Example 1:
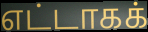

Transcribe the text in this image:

எட்டாகக்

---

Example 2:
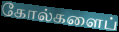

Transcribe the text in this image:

கோல்களைப்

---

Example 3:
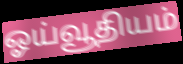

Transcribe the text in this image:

ஓய்வூதியம்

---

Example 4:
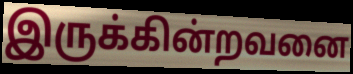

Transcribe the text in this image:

இருக்கின்றவனை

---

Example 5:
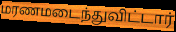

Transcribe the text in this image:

மரணமடைந்துவிட்டார்